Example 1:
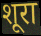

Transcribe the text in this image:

शूरा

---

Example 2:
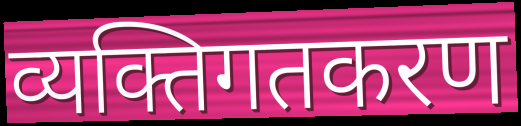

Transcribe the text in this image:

व्यक्तिगतकरण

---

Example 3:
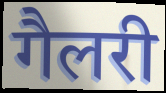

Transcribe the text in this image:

गैलरी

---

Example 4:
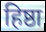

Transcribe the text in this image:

हिष्ठा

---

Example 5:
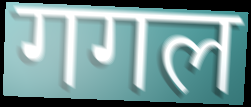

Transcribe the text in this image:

गगल